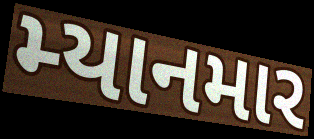
મ્યાનમાર